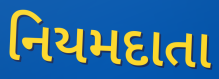
નિયમદાતા